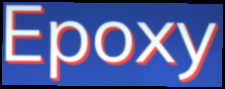
Epoxy